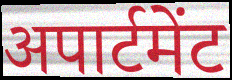
अपार्टमेंट